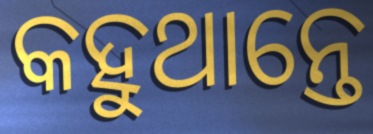
କହୁଥାନ୍ତେ